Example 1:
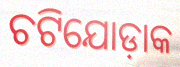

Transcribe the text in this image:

ଚଟିଯୋଡ଼ାକ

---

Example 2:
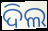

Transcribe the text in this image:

ଦିଲ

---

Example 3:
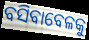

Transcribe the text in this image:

ବସିବାବେଳକୁ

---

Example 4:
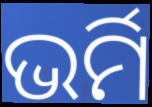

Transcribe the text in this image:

ଭର୍ମି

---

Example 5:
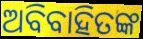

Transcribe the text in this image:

ଅବିବାହିତଙ୍କ